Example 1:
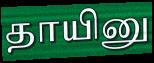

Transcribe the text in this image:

தாயினு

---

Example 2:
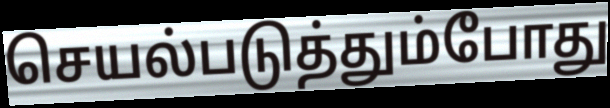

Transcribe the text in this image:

செயல்படுத்தும்போது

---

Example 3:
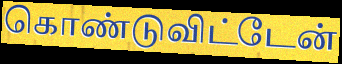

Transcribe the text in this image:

கொண்டுவிட்டேன்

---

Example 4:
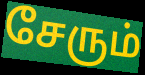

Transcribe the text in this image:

சேரும்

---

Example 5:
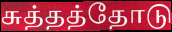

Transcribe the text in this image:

சுத்தத்தோடு